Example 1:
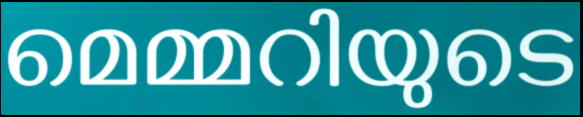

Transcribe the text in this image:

മെമ്മറിയുടെ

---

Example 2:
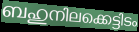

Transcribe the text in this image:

ബഹുനിലക്കെട്ടിടം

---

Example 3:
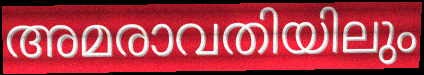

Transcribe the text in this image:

അമരാവതിയിലും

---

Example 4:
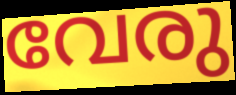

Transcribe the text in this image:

വേരു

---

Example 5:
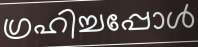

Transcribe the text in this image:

ഗ്രഹിച്ചപ്പോൾ